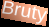
Bruty